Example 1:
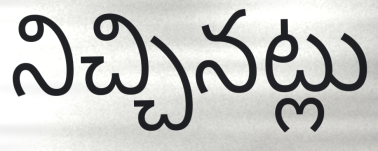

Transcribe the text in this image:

నిచ్చినట్లు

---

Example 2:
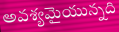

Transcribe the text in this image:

అవశ్యమైయున్నది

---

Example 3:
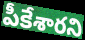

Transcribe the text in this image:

పీకేశారని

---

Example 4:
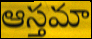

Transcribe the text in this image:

ఆస్తమా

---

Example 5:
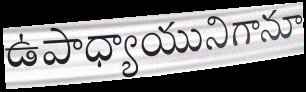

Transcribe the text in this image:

ఉపాధ్యాయునిగానూ